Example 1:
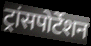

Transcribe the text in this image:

ट्रांसपोर्टेशन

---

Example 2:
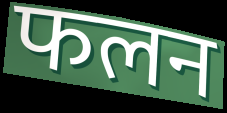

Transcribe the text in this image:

फलन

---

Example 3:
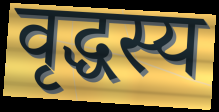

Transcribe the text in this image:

वृद्धस्य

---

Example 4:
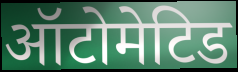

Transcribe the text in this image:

ऑटोमेटिड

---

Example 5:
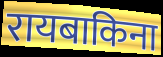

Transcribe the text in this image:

रायबाकिना